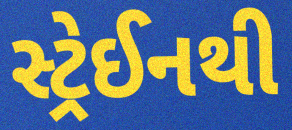
સ્ટ્રેઈનથી